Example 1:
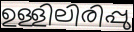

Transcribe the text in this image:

ഉള്ളിലിരിപ്പു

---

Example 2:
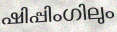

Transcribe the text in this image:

ഷിപ്പിംഗിലും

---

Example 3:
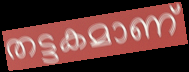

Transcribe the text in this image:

തട്ടകമാണ്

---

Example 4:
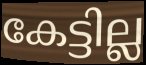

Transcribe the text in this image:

കേട്ടില്ല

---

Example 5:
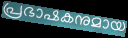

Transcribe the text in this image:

പ്രഭാഷകനുമായ